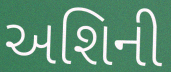
અશિની